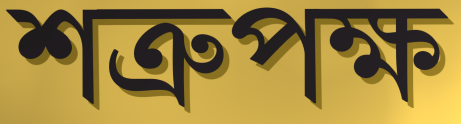
শত্রুপক্ষ